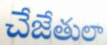
చేజేతులా